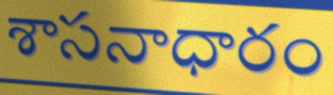
శాసనాధారం